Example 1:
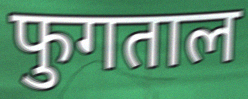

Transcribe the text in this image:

फुगताल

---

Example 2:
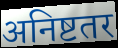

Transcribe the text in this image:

अनिष्टतर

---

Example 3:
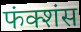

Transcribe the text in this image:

फंक्शंस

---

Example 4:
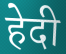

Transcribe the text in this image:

हेदी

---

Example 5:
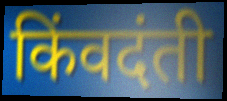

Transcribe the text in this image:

किंवदंती